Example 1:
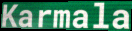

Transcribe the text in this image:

Karmala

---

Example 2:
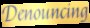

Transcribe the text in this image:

Denouncing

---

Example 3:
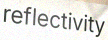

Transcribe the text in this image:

reflectivity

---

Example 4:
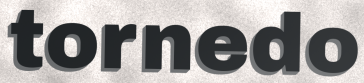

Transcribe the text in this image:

tornedo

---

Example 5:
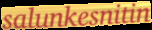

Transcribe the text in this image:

salunkesnitin